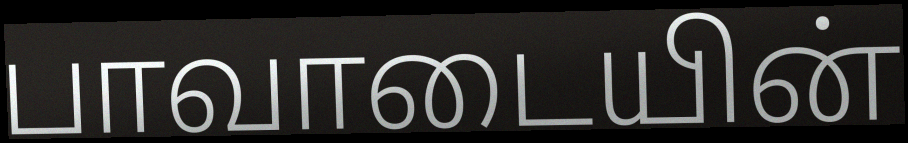
பாவாடையின்